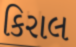
કિરાલ